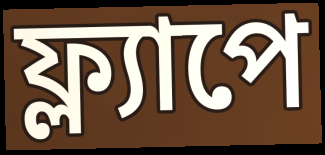
ফ্ল্যাপে